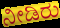
ನೀಡಿರು